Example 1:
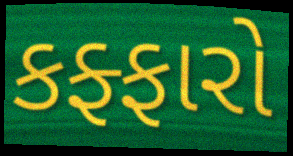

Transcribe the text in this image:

કફ્ફારો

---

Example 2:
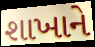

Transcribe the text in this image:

શાખાને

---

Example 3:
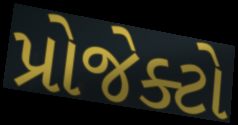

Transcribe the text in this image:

પ્રોજેક્ટો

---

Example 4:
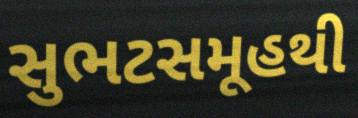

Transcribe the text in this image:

સુભટસમૂહથી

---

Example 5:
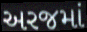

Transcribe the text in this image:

અરજમાં